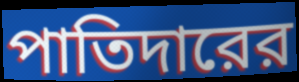
পাতিদারের